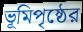
ভূমিপৃষ্ঠের